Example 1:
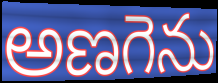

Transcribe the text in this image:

అణగెను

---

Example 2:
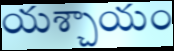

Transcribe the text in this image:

యశ్చాయం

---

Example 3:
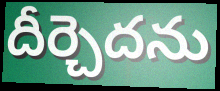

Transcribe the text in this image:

దీర్చెదను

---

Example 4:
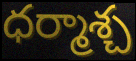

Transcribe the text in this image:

ధర్మాశ్చ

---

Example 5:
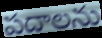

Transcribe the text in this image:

పదాలను